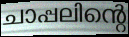
ചാപ്പലിന്റെ